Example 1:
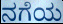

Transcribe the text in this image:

ನಗೆಯ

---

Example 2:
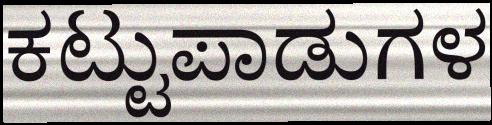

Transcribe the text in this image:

ಕಟ್ಟುಪಾಡುಗಳ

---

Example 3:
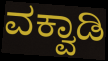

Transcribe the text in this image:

ವಕ್ವಾಡಿ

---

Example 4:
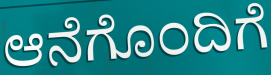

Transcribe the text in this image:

ಆನೆಗೊಂದಿಗೆ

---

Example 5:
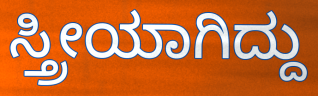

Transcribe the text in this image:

ಸ್ತ್ರೀಯಾಗಿದ್ದು